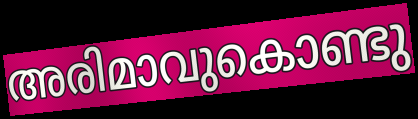
അരിമാവുകൊണ്ടു